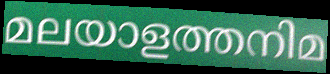
മലയാളത്തനിമ